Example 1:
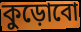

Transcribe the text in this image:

কুড়োবো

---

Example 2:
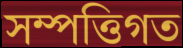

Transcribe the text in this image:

সম্পত্তিগত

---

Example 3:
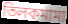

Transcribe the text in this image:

তিলকমামা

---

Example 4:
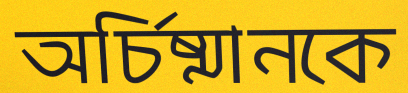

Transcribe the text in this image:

অর্চিষ্মানকে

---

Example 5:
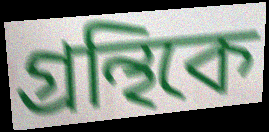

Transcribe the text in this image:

গ্রন্থিকে